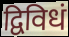
द्विविधं